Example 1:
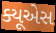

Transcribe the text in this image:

ક્યૂએસ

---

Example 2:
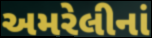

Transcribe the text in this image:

અમરેલીનાં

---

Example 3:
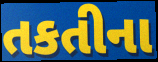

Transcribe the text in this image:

તકતીના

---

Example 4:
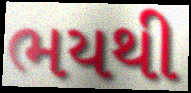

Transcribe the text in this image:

ભયથી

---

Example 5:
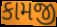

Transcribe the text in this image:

કામજી